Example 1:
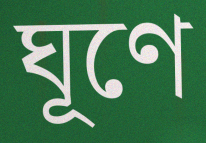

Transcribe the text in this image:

ঘূণে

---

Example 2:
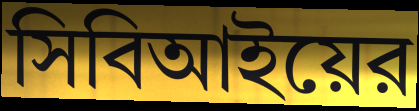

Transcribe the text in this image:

সিবিআইয়ের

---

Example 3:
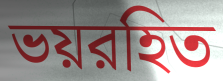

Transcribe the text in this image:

ভয়রহিত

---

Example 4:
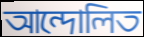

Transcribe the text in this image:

আন্দোলিত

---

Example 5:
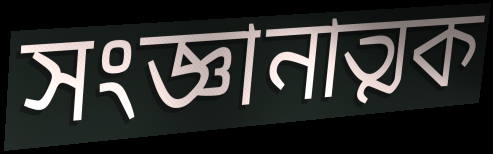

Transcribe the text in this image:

সংজ্ঞানাত্মক